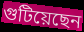
গুটিয়েছেন